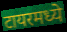
टायरमध्ये